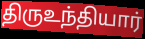
திருஉந்தியார்